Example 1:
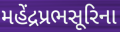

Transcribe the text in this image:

મહેંદ્રપ્રભસૂરિના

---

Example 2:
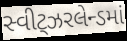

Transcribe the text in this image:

સ્વીટ્ઝરલેન્ડમાં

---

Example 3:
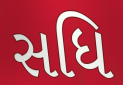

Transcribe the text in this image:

સધિ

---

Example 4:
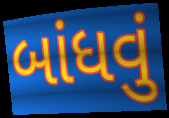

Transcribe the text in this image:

બાંધવું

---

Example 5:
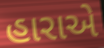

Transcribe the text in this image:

હારાએ